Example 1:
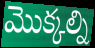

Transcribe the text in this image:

మొక్కల్ని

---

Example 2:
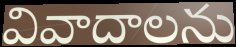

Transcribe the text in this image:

వివాదాలను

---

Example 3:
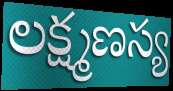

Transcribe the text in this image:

లక్ష్మణస్య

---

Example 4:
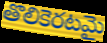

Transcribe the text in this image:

తొలికెరటమై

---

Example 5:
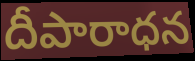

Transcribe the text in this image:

దీపారాధన